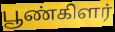
பூண்கிளர்